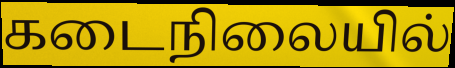
கடைநிலையில்